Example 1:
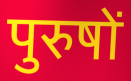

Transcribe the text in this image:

पुरुषों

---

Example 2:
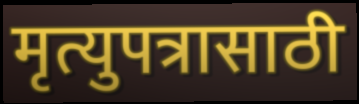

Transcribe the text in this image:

मृत्युपत्रासाठी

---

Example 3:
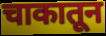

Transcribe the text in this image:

चाकातून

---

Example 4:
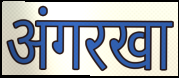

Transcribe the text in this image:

अंगरखा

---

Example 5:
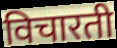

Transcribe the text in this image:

विचारती